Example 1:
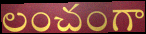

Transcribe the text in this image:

లంచంగా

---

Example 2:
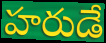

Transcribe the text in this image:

హరుడే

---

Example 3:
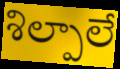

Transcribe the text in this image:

శిల్పాలే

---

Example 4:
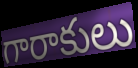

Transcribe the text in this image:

గారాకులు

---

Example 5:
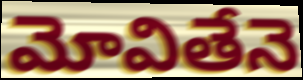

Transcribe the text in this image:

మోవితేనె